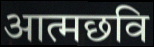
आत्मछवि